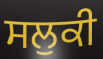
ਸਲੁਕੀ